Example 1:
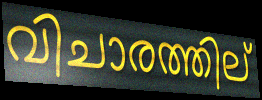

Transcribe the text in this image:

വിചാരത്തില്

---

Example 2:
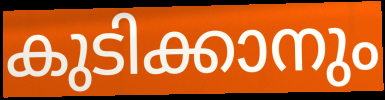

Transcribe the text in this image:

കുടിക്കാനും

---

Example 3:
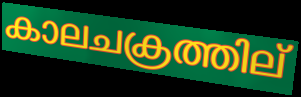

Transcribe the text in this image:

കാലചക്രത്തില്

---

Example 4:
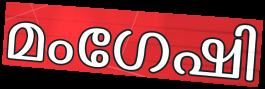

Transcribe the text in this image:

മംഗേഷി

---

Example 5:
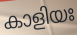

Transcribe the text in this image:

കാളിയഃ